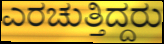
ಎರಚುತ್ತಿದ್ದರು